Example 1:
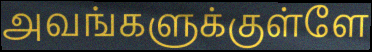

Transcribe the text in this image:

அவங்களுக்குள்ளே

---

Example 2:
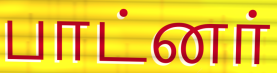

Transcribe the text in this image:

பாட்னர்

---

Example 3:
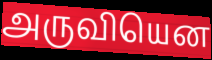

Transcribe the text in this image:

அருவியென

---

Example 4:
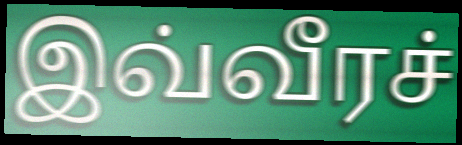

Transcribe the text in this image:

இவ்வீரச்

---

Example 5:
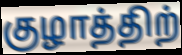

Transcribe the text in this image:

குழாத்திற்